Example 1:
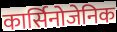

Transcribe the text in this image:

कार्सिनोजेनिक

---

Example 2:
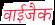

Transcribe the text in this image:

वाईजैक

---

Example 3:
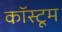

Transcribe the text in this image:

कॉस्टूम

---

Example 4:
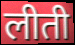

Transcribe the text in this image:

लीती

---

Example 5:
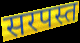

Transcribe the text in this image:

सरपस्त